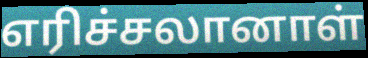
எரிச்சலானாள்